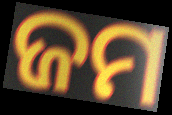
ଜମ